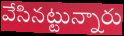
వేసినట్టున్నారు